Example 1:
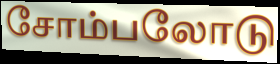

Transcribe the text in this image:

சோம்பலோடு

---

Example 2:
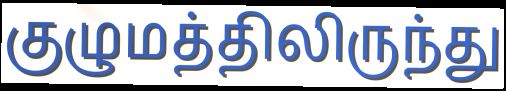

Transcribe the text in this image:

குழுமத்திலிருந்து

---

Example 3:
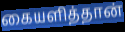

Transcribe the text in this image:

கையளித்தான்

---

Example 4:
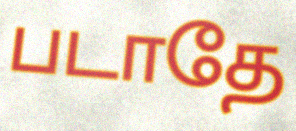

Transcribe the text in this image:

படாதே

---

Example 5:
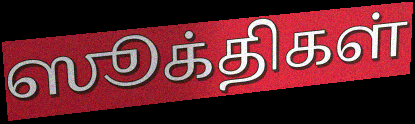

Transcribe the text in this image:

ஸூக்திகள்